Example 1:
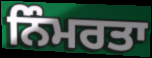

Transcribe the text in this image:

ਨਿੰਮਰਤਾ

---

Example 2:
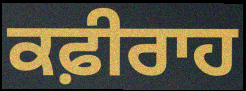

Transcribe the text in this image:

ਕਫ਼ੀਰਾਹ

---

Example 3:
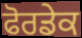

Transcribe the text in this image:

ਫੋਰਡੇਕ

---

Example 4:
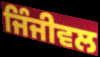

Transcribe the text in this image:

ਜਿੰਜੀਵਲ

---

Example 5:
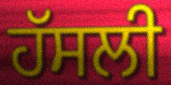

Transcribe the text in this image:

ਹੱਸਲੀ